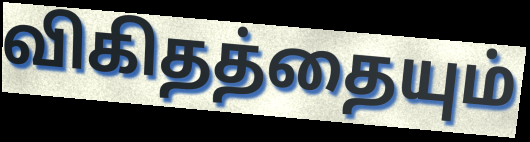
விகிதத்தையும்